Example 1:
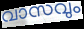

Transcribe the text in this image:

വാസവും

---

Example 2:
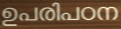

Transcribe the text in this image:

ഉപരിപഠന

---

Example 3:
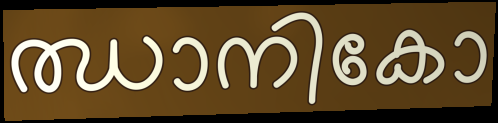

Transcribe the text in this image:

ഝാനികോ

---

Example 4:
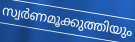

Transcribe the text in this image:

സ്വർണമൂക്കുത്തിയും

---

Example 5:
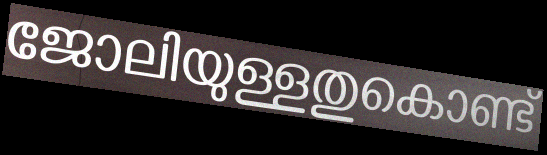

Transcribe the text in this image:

ജോലിയുള്ളതുകൊണ്ട്